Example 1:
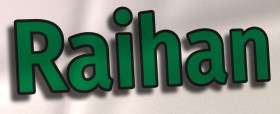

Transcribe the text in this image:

Raihan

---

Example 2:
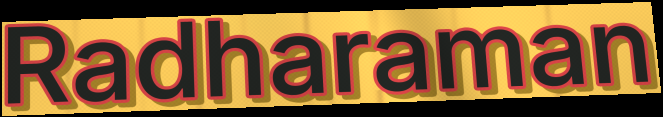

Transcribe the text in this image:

Radharaman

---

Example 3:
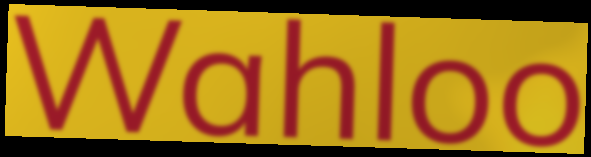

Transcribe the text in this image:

Wahloo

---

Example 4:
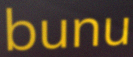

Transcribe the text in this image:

bunu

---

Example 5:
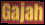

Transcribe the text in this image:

Gajah